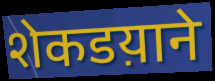
शेकडय़ाने